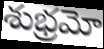
శుభ్రమో